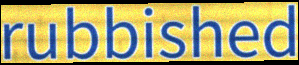
rubbished